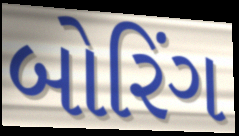
બોરિંગ